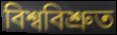
বিশ্ববিশ্ৰুত